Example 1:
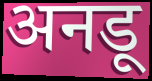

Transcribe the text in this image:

अनडू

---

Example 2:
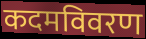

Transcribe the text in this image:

कदमविवरण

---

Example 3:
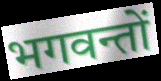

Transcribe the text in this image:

भगवन्तों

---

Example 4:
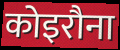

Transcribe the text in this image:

कोइरौना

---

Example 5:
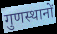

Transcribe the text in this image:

गुणस्थानों